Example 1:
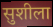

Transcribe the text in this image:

सुशीला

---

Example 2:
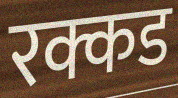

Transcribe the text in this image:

रक्कड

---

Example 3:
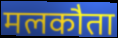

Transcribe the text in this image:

मलकौता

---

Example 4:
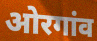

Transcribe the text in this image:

ओरगांव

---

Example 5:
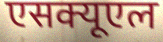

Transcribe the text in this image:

एसक्यूएल